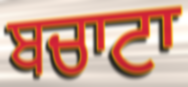
ਬਚਾਟਾ